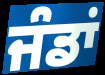
ਜੰਡਾਂ